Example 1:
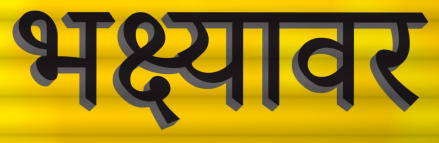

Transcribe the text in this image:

भक्ष्यावर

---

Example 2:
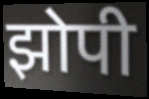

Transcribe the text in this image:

झोपी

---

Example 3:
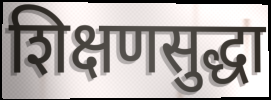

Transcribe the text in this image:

शिक्षणसुद्धा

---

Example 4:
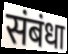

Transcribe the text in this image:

संबंधा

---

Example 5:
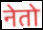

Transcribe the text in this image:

नेतो